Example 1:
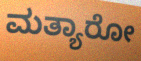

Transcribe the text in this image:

ಮತ್ಯಾರೋ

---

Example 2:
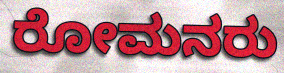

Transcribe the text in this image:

ರೋಮನರು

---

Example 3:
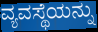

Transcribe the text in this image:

ವ್ಯವಸ್ಥೆಯನ್ನು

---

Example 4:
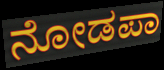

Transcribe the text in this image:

ನೋಡಪಾ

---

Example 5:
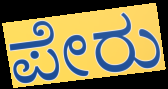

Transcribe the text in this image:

ಪೇರು